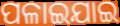
ପଳାଇଯାଇ